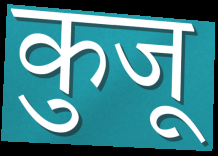
कुजू